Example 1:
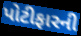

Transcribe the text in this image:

પોટીફારની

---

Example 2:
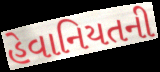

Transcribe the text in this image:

હેવાનિયતની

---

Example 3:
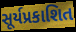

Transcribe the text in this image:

સૂર્યપ્રકાશિત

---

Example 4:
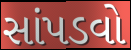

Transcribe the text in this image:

સાંપડવો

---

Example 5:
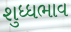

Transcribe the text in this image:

શુધ્ધભાવ